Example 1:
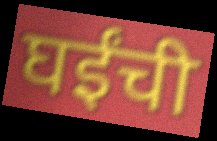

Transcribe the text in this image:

घईंची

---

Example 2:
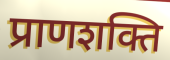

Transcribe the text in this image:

प्राणशक्ति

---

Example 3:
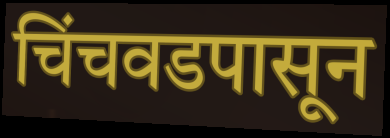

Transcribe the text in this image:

चिंचवडपासून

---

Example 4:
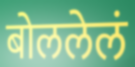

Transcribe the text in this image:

बोललेलं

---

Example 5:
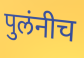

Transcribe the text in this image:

पुलंनीच